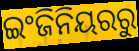
ଇଂଜିନିୟରରୁ